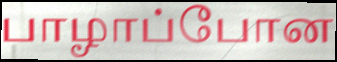
பாழாப்போன